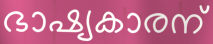
ഭാഷ്യകാരന്